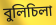
বুলিচিলা